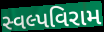
સ્વલ્પવિરામ